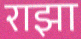
राझा